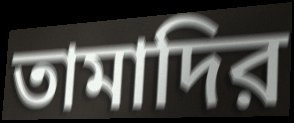
তামাদির